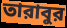
তারাবুর